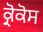
ਕ੍ਰੋਕੋਸ